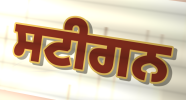
ਸਟੀਗਨ